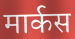
मार्कस